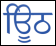
ਊਿਠ